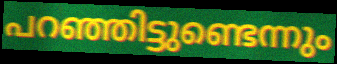
പറഞ്ഞിട്ടുണ്ടെന്നും